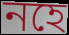
নহে